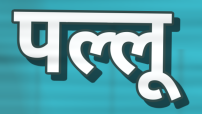
पल्लू